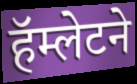
हॅम्लेटने